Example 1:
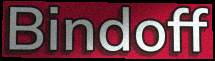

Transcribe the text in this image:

Bindoff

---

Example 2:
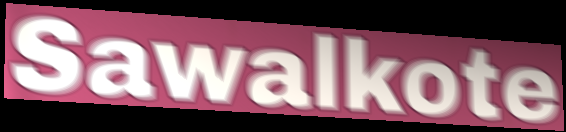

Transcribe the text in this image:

Sawalkote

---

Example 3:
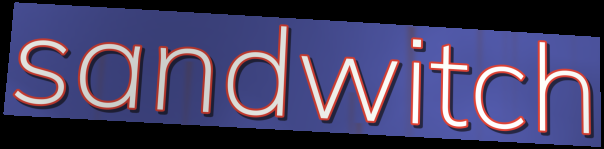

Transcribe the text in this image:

sandwitch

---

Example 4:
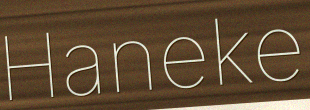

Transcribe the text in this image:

Haneke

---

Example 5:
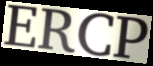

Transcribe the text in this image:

ERCP